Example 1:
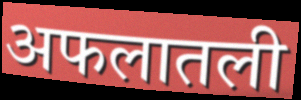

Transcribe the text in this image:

अफलातली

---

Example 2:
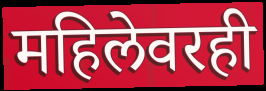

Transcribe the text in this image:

महिलेवरही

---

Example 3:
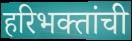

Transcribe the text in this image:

हरिभक्तांची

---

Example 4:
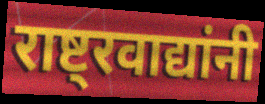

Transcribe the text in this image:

राष्ट्रवाद्यांनी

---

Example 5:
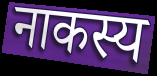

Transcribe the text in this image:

नाकस्य